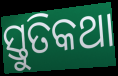
ସ୍ତୁତିକଥା